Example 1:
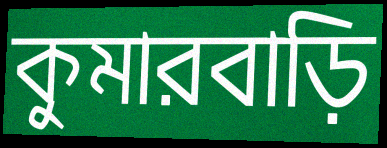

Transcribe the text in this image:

কুমারবাড়ি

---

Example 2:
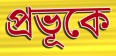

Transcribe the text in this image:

প্রভূকে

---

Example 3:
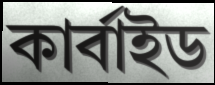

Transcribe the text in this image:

কার্বাইড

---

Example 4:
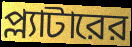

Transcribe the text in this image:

প্ল্যাটারের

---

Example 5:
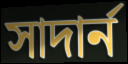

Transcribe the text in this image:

সাদার্ন